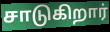
சாடுகிறார்